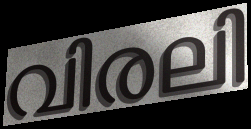
വിരലി